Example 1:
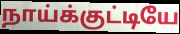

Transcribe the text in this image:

நாய்க்குட்டியே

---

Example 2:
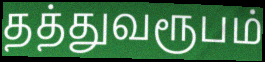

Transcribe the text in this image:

தத்துவரூபம்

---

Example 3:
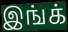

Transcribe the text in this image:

இங்க்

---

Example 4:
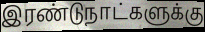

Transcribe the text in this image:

இரண்டுநாட்களுக்கு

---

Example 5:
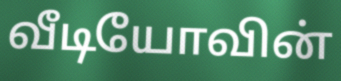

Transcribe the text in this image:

வீடியோவின்